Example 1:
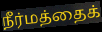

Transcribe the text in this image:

நீர்மத்தைக்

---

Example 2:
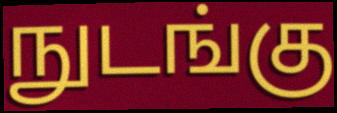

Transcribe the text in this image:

நுடங்கு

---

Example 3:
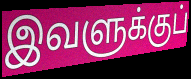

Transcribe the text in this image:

இவளுக்குப்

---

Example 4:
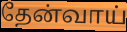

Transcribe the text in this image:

தேன்வாய்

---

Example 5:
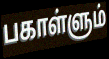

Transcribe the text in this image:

பகாள்ளும்